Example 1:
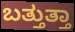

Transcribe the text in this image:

ಬತ್ತುತ್ತಾ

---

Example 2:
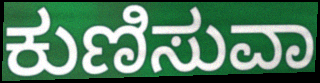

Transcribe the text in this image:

ಕುಣಿಸುವಾ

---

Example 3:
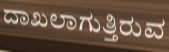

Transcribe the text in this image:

ದಾಖಲಾಗುತ್ತಿರುವ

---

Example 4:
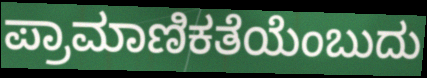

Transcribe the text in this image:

ಪ್ರಾಮಾಣಿಕತೆಯೆಂಬುದು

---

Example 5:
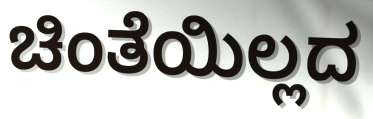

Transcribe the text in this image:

ಚಿಂತೆಯಿಲ್ಲದ